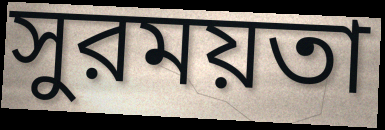
সুরময়তা